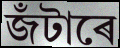
জঁটাৰে